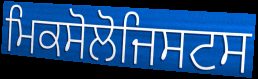
ਮਿਕਸੋਲੋਜਿਸਟਸ